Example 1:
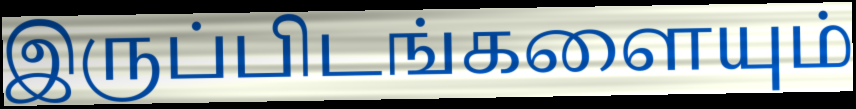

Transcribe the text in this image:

இருப்பிடங்களையும்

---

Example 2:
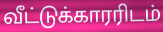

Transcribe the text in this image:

வீட்டுக்காரரிடம்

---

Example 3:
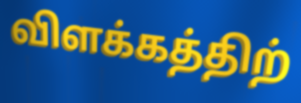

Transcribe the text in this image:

விளக்கத்திற்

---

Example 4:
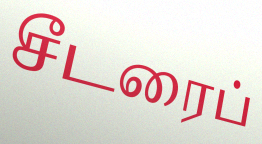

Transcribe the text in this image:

சீடரைப்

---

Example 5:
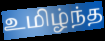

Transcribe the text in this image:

உமிழ்ந்த